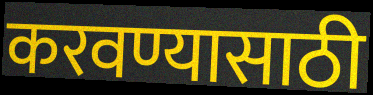
करवण्यासाठी